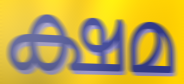
ക്ഷമ